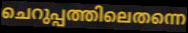
ചെറുപ്പത്തിലെതന്നെ